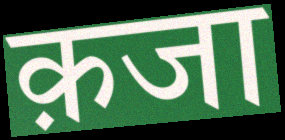
क़जा